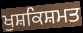
ਖੁਸ਼ਕਿਸ਼ਮਤ